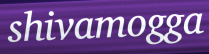
shivamogga